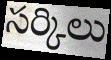
సర్కిలు